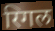
रिगल